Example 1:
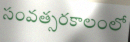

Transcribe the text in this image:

సంవత్సరకాలంలో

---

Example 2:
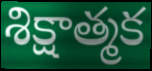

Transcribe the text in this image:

శిక్షాత్మక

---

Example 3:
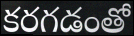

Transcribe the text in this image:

కరగడంతో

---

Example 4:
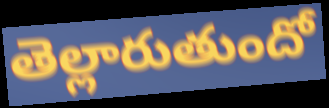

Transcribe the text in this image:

తెల్లారుతుందో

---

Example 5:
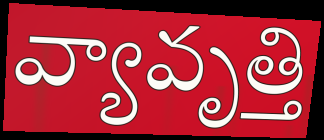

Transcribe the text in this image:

వ్యావృత్తి